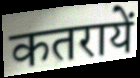
कतरायें